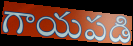
గాయపడి